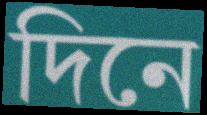
দিনে